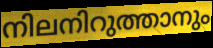
നിലനിറുത്താനും